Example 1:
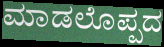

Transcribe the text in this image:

ಮಾಡಲೊಪ್ಪದ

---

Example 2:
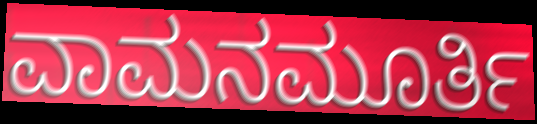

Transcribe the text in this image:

ವಾಮನಮೂರ್ತಿ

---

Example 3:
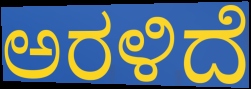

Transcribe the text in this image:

ಅರಳಿದೆ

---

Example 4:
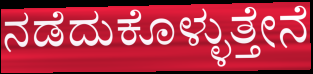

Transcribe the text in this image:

ನಡೆದುಕೊಳ್ಳುತ್ತೇನೆ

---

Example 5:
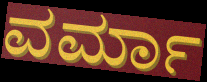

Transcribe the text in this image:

ವರ್ಮಾ